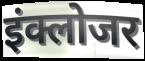
इंक्लोजर